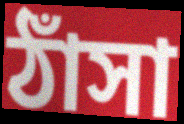
ঠাঁসা